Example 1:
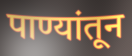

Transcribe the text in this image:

पाण्यांतून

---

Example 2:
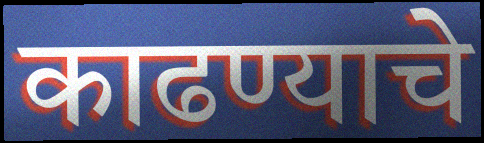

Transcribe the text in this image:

काढण्याचे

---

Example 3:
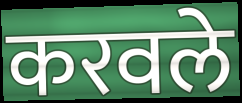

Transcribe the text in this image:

करवले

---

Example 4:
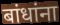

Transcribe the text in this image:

बांधांना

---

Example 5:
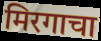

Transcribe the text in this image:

मिरगाचा